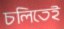
চলিতেই